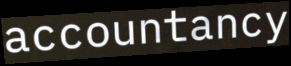
accountancy